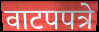
वाटपपत्रे